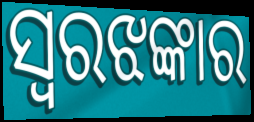
ସ୍ୱରଝଙ୍କାର